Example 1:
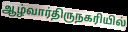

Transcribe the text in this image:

ஆழ்வார்திருநகரியில்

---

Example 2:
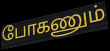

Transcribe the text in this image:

போகணும்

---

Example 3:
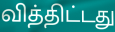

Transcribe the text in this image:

வித்திட்டது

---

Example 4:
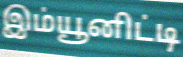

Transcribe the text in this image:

இம்யூனிட்டி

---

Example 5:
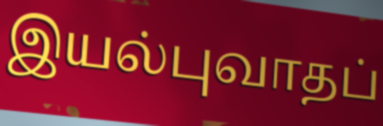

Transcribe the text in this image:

இயல்புவாதப்